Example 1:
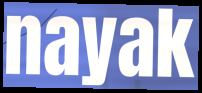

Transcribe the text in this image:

nayak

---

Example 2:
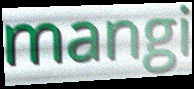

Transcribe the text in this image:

mangi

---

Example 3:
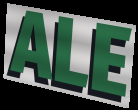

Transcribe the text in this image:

ALE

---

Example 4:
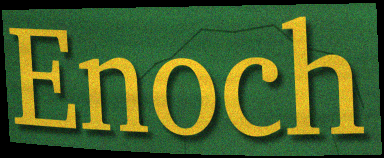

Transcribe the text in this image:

Enoch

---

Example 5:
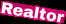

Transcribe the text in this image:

Realtor